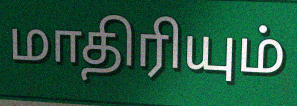
மாதிரியும்